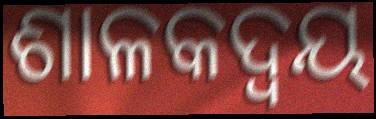
ଶାଳକଦ୍ୱୟ